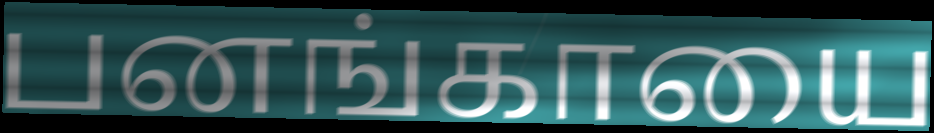
பனங்காயை